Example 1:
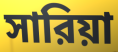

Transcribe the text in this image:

সারিয়া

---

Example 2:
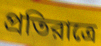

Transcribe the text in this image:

প্রতিরাত্রে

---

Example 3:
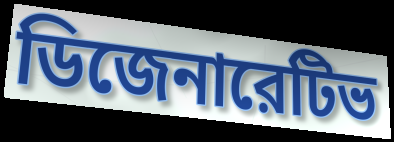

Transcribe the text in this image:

ডিজেনারেটিভ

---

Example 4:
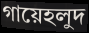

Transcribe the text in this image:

গায়েহলুদ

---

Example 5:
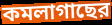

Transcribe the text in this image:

কমলাগাছের